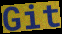
Git